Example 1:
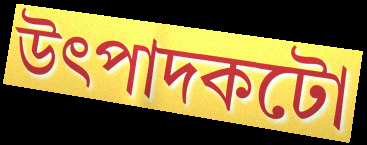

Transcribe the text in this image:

উৎপাদকটো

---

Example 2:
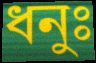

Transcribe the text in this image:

ধনুঃ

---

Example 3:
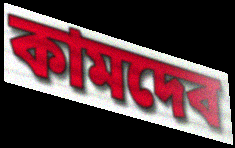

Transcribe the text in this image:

কামদেব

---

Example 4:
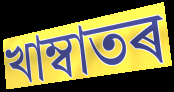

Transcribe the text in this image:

খাম্বাতৰ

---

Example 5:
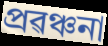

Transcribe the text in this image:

প্ৰৱঞ্চনা